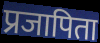
प्रजापिता